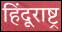
हिंदूराष्ट्र